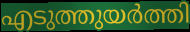
എടുത്തുയർത്തി